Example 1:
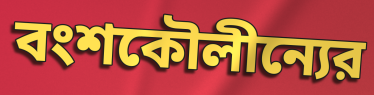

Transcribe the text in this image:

বংশকৌলীন্যের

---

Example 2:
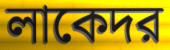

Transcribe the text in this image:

লাকেদর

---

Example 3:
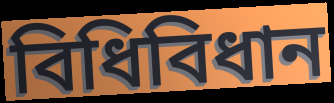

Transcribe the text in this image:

বিধিবিধান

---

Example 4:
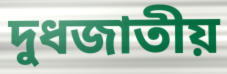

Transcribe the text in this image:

দুধজাতীয়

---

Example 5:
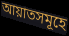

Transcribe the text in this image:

আয়াতসমূহে